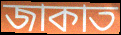
জাকাত